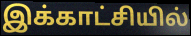
இக்காட்சியில்